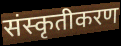
संस्कृतीकरण